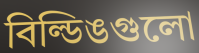
বিল্ডিঙগুলো